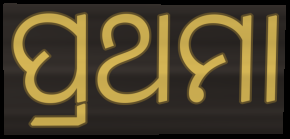
ପ୍ରଥମା